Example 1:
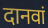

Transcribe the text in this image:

दानवां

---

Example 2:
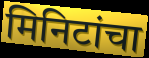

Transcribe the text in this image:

मिनिटांचा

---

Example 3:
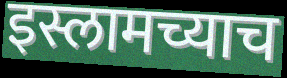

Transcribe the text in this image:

इस्लामच्याच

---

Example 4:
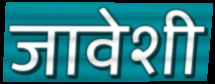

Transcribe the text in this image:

जावेशी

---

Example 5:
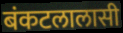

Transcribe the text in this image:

बंकटलालासी